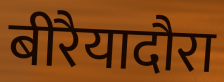
बीरैयादौरा